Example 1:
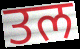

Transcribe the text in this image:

उल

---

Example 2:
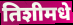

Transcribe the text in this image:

तिशीमधे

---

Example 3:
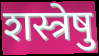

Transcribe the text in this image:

शस्त्रेषु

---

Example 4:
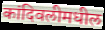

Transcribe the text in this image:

कांदिवलीमधील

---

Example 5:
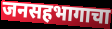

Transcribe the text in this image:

जनसहभागाचा